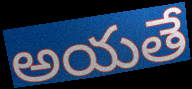
అయతే